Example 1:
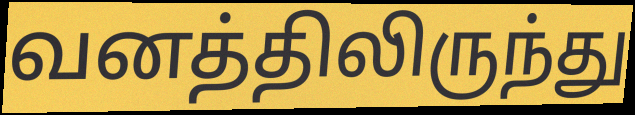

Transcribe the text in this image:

வனத்திலிருந்து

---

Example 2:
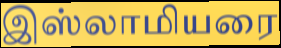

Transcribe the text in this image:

இஸ்லாமியரை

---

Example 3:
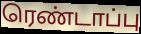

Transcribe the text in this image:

ரெண்டாப்பு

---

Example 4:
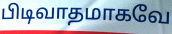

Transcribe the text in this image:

பிடிவாதமாகவே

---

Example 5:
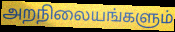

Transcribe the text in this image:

அறநிலையங்களும்